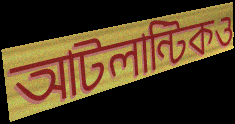
আটলান্টিকও